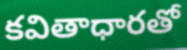
కవితాధారతో